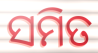
ସମିତ